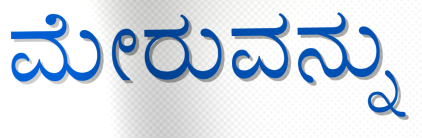
ಮೇರುವನ್ನು